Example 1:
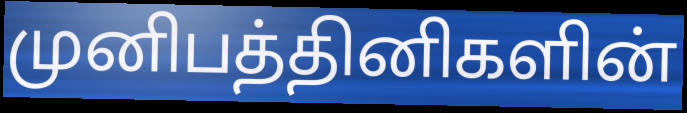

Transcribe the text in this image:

முனிபத்தினிகளின்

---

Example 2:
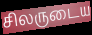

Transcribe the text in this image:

சிலருடைய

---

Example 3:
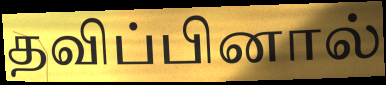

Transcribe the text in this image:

தவிப்பினால்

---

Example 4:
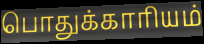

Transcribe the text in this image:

பொதுக்காரியம்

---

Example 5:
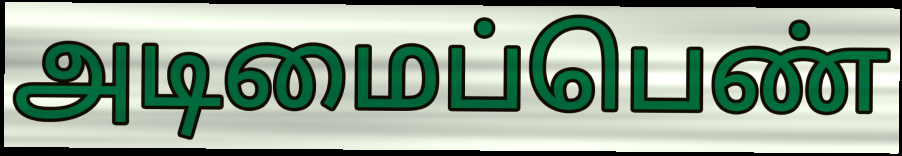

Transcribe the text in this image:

அடிமைப்பெண்